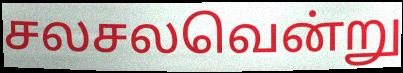
சலசலவென்று